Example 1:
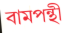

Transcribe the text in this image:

বামপন্থী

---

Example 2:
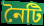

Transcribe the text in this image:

নৈটি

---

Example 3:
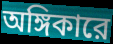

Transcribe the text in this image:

অঙ্গিকারে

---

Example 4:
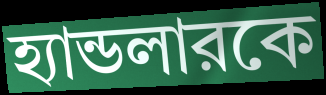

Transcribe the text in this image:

হ্যান্ডলারকে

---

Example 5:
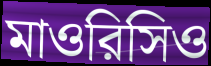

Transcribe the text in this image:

মাওরিসিও